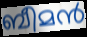
ബീമൻ